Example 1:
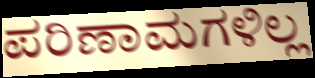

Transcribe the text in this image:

ಪರಿಣಾಮಗಳಿಲ್ಲ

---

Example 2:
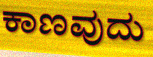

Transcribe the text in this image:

ಕಾಣವುದು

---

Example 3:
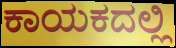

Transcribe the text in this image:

ಕಾಯಕದಲ್ಲಿ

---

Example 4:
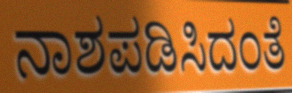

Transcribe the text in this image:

ನಾಶಪಡಿಸಿದಂತೆ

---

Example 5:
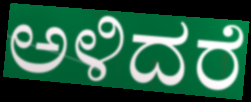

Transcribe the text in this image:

ಅಳಿದರೆ